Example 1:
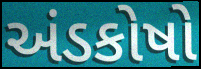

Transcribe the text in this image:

અંડકોષો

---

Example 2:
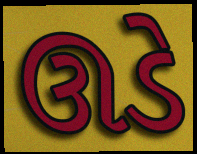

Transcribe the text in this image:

ઊડે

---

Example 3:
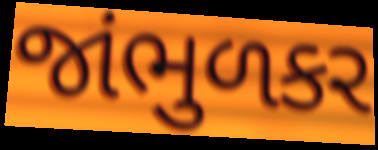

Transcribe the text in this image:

જાંભુળકર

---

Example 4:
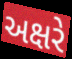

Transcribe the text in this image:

અક્ષરે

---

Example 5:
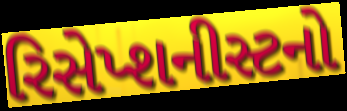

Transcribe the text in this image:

રિસેપ્શનીસ્ટનો